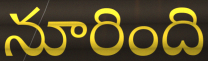
నూరింది